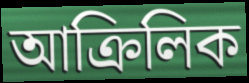
আক্ৰিলিক